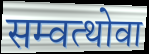
सम्वत्थोवा